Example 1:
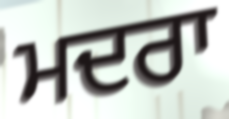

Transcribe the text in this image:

ਮਦਰਾ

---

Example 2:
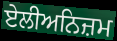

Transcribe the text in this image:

ਏਲੀਅਨਿਜ਼ਮ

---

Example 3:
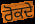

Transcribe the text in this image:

ਰੋਕਦੇ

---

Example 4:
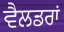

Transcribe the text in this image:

ਵੈਲਡਰਾਂ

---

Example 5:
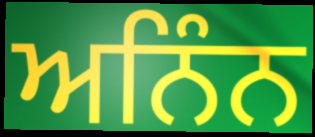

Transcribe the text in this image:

ਅਨਿੰਨ